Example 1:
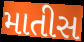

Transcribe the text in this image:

માતીસ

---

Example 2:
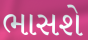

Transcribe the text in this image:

ભાસશે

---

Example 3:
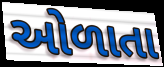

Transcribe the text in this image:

ઓળાતા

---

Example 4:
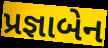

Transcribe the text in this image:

પ્રજ્ઞાબેન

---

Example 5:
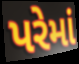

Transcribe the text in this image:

પરેમાં